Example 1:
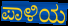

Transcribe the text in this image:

ಪಾಳಿಯ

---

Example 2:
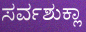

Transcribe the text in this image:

ಸರ್ವಶುಕ್ಲಾ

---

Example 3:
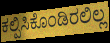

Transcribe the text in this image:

ಕಲ್ಪಿಸಿಕೊಂಡಿರಲಿಲ್ಲ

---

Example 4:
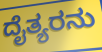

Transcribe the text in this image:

ದೈತ್ಯರನು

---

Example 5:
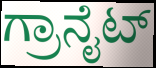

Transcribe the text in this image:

ಗ್ರಾನೈಟ್